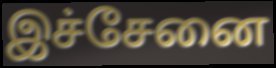
இச்சேனை